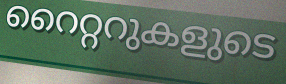
റൈറ്ററുകളുടെ